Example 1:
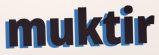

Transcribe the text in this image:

muktir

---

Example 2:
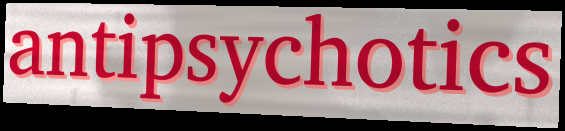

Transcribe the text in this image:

antipsychotics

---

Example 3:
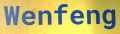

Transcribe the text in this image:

Wenfeng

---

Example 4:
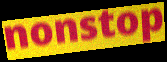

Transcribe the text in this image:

nonstop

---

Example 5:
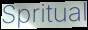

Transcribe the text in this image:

Spritual